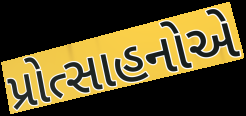
પ્રોત્સાહનોએ